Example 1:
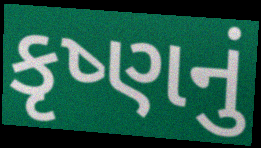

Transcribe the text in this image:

કૃષ્ણનું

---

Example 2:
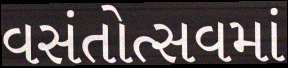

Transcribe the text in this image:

વસંતોત્સવમાં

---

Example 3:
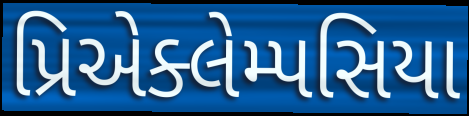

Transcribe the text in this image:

પ્રિએક્લેમ્પસિયા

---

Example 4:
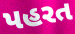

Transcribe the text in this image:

પહરત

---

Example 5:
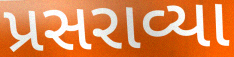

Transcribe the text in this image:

પ્રસરાવ્યા